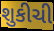
શુકીચી